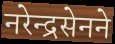
नरेन्द्रसेनने